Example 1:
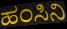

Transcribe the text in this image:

ಹಂಸಿನಿ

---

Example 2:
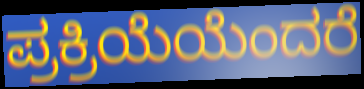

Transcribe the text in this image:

ಪ್ರಕ್ರಿಯೆಯೆಂದರೆ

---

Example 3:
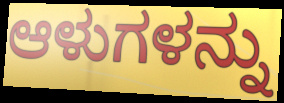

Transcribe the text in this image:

ಆಳುಗಳನ್ನು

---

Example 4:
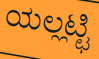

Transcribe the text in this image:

ಯಲ್ಲಟ್ಟಿ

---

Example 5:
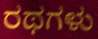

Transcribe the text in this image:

ರಥಗಳು